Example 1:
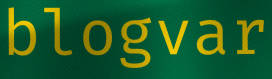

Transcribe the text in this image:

blogvar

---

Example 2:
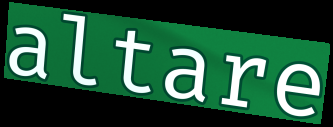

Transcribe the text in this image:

altare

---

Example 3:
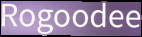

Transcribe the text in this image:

Rogoodee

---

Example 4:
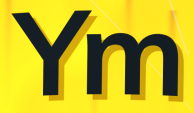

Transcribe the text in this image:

Ym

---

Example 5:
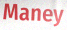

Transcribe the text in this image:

Maney